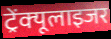
ट्रेंक्यूलाइजर